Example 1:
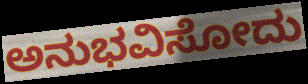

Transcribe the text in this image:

ಅನುಭವಿಸೋದು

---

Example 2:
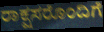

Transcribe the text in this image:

ರಾಕ್ಷಸರೊಂದಿಗೆ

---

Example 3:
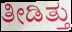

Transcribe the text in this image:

ತೀಡಿತ್ತು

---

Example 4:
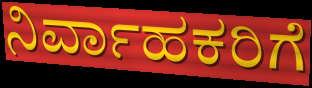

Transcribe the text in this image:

ನಿರ್ವಾಹಕರಿಗೆ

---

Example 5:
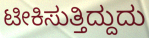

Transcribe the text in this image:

ಟೀಕಿಸುತ್ತಿದ್ದುದು